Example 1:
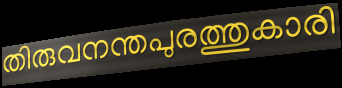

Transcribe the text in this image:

തിരുവനന്തപുരത്തുകാരി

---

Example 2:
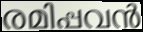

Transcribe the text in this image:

രമിപ്പവൻ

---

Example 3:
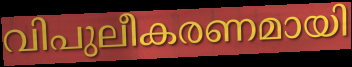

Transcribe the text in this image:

വിപുലീകരണമായി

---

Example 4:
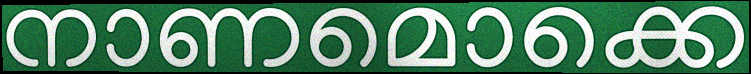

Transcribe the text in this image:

നാണമൊക്കെ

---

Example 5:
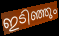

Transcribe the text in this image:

ഇടിഞ്ഞും